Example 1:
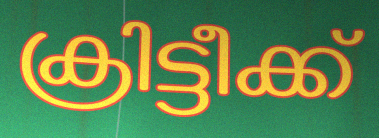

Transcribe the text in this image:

ക്രിട്ടീക്ക്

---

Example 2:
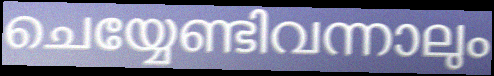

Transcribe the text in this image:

ചെയ്യേണ്ടിവന്നാലും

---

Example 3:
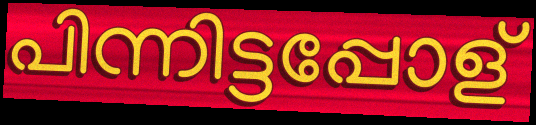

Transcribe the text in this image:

പിന്നിട്ടപ്പോള്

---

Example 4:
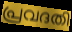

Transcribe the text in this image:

പ്രവദതി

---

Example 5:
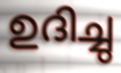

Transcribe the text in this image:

ഉദിച്ചു